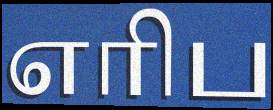
எரிப